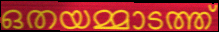
ഒതയമ്മാടത്ത്